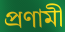
প্রণামী